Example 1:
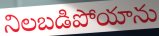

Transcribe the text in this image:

నిలబడిపోయాను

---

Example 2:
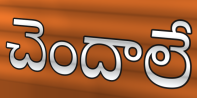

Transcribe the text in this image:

చెందాలే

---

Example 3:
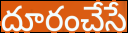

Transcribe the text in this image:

దూరంచేసే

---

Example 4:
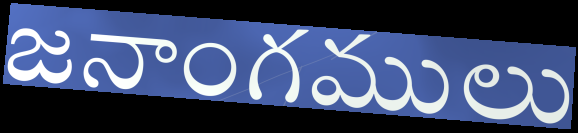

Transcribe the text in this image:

జనాంగములు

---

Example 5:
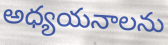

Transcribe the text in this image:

అధ్యయనాలను